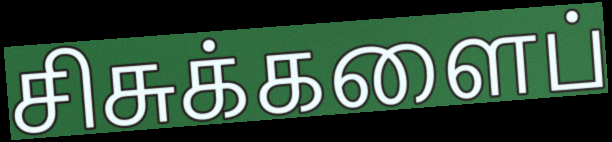
சிசுக்களைப்